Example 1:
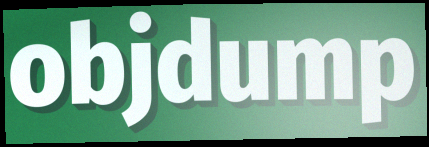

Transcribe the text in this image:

objdump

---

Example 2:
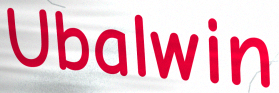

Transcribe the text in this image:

Ubalwin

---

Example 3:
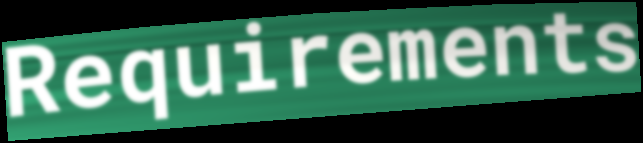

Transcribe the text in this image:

Requirements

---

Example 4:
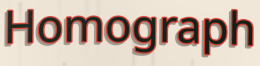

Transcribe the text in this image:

Homograph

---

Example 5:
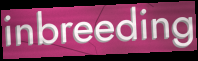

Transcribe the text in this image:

inbreeding